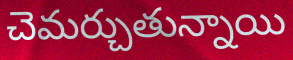
చెమర్చుతున్నాయి